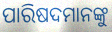
ପାରିଷଦମାନଙ୍କୁ